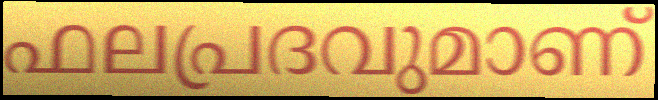
ഫലപ്രദവുമാണ്